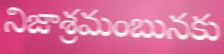
నిజాశ్రమంబునకు